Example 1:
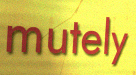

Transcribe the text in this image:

mutely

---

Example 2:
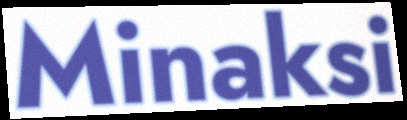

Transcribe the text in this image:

Minaksi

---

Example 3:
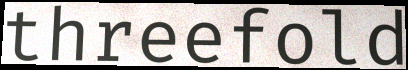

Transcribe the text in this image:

threefold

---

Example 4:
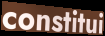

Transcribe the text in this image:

constitui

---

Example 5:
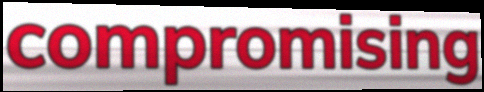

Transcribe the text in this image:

compromising